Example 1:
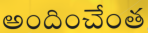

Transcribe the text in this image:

అందించేంత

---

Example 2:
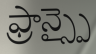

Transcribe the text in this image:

ఫ్రాన్స్పై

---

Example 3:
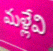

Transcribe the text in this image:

మళ్లేవి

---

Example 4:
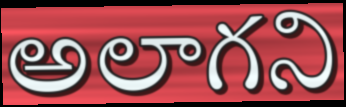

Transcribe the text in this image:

అలాగని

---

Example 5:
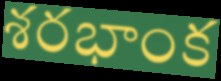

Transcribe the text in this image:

శరభాంక